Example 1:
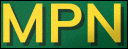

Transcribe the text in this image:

MPN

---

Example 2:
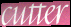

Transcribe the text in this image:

cutter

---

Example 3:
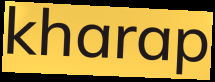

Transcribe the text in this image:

kharap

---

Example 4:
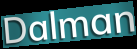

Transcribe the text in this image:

Dalman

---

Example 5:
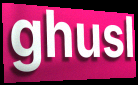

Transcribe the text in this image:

ghusl